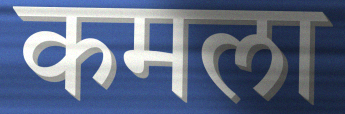
कमला